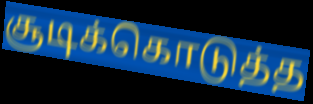
சூடிக்கொடுத்த